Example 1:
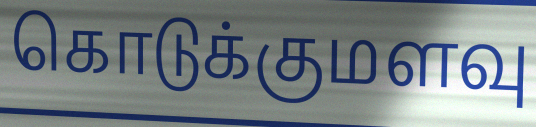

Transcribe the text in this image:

கொடுக்குமளவு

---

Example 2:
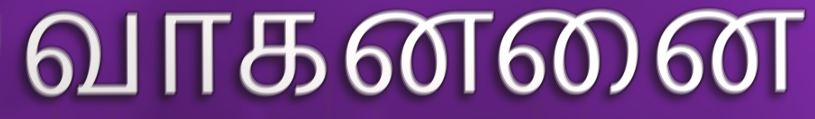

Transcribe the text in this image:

வாகனனை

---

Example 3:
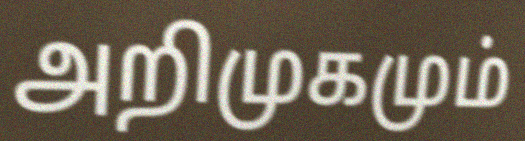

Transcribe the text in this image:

அறிமுகமும்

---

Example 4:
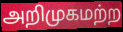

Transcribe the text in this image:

அறிமுகமற்ற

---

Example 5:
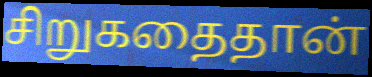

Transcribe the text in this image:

சிறுகதைதான்